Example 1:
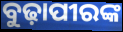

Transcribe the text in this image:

ବୁଢ଼ାପୀରଙ୍କ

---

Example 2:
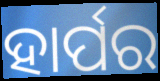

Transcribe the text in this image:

ହାର୍ପର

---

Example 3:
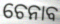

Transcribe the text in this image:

ଚେନାବ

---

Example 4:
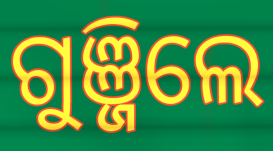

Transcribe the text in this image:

ଗୁଞ୍ଜିଲେ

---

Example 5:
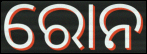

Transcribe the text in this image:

ରୋନ